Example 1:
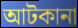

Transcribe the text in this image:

আটকানা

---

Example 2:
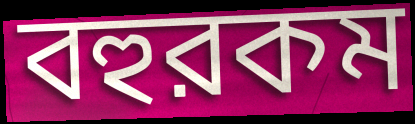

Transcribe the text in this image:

বহুরকম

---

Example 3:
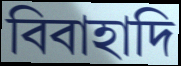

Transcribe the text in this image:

বিবাহাদি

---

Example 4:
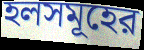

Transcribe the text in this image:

হলসমূহের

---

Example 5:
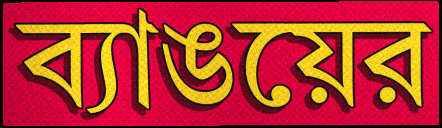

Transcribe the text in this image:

ব্যাঙয়ের